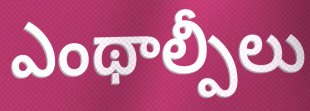
ఎంథాల్పీలు